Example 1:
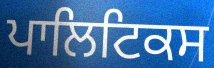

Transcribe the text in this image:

ਪਾਲਿਟਿਕਸ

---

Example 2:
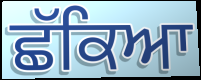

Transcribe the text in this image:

ਛੱਕਿਆ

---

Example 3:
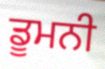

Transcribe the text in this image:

ਡੂਮਨੀ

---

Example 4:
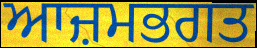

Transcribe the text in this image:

ਆਜ਼ਮਭਗਤ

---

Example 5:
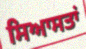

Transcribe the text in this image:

ਸਿਆਸਤਾਂ